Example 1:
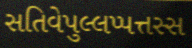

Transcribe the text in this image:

સતિવેપુલ્લપ્પત્તસ્સ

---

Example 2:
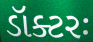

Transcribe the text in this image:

ડૉક્ટરઃ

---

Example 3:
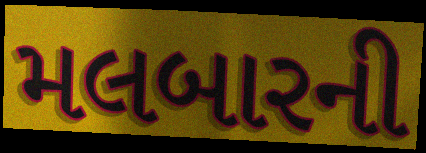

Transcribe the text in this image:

મલબારની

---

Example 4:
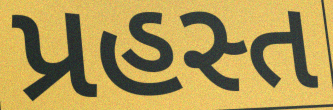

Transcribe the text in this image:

પ્રહસ્ત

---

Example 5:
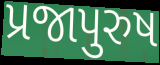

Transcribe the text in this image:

પ્રજાપુરુષ